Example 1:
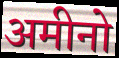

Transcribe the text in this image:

अमीनो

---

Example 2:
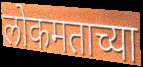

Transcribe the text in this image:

लोकमताच्या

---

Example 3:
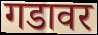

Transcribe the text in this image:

गडावर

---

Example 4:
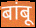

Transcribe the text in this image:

बांबू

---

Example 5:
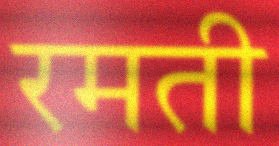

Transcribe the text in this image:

रमती